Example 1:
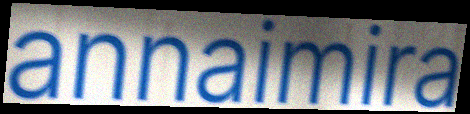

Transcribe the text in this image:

annaimira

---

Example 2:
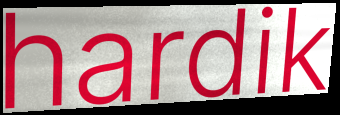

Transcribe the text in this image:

hardik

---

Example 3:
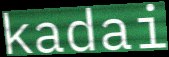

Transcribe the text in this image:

kadai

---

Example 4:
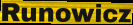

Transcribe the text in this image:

Runowicz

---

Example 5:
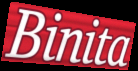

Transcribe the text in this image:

Binita